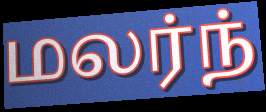
மலர்ந்